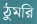
ঠুমরি